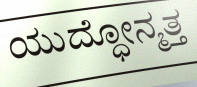
ಯುದ್ಧೋನ್ಮತ್ತ